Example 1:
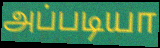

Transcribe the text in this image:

அப்படியா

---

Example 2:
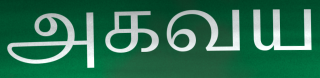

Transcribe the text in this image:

அகவய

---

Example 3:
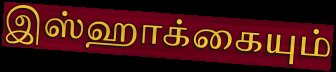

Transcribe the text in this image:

இஸ்ஹாக்கையும்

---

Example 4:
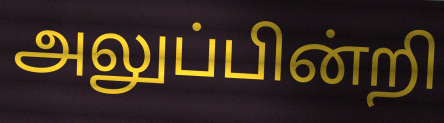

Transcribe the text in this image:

அலுப்பின்றி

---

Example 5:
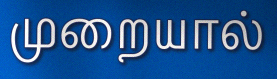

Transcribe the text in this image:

முறையால்